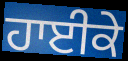
ਹਾਈਕੇ